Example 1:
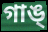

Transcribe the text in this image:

গাঙ্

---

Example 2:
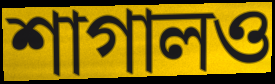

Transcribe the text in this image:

শাগালও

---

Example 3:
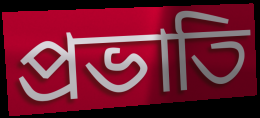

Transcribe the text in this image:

প্রভাতি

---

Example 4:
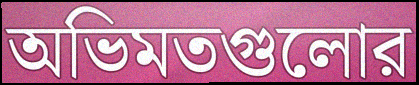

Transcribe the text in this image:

অভিমতগুলোর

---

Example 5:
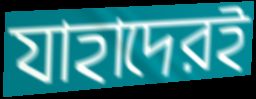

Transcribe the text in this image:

যাহাদেরই